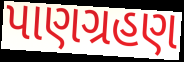
પાણગ્રહણ